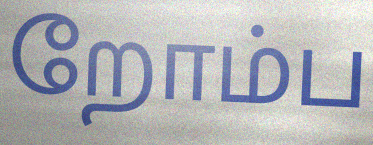
றோம்ப